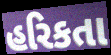
હરિકતા